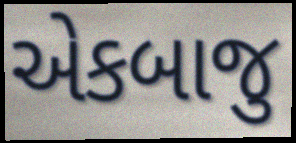
એકબાજુ